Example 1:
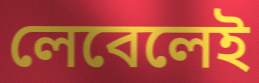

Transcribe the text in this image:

লেবেলেই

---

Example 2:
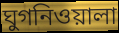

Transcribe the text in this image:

ঘুগনিওয়ালা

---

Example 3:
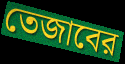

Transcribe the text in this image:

তেজাবের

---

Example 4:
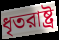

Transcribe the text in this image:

ধৃতরাষ্ট্র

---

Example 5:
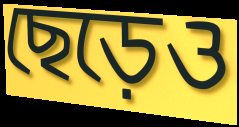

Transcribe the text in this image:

ছেড়েও